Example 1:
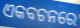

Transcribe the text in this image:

ଏକବଚନରେ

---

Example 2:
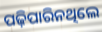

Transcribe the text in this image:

ପଢ଼ିପାରିନଥିଲେ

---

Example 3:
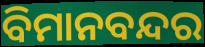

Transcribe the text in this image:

ବିମାନବନ୍ଦର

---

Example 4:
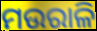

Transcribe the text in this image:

ମଉରାଳି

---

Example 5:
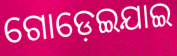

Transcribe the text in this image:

ଗୋଡ଼େଇଯାଇ